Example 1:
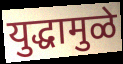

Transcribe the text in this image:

युद्धामुळे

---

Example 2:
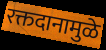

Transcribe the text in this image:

रक्तदानामुळे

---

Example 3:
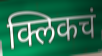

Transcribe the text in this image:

क्लिकचं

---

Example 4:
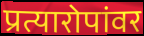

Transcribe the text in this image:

प्रत्यारोपांवर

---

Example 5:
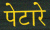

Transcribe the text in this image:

पेटारे